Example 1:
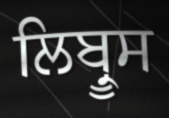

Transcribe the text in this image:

ਲਿਬ੍ਰੂਸ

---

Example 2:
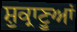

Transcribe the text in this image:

ਸ਼ੁਕ੍ਰਾਣੂਆਂ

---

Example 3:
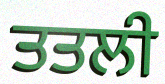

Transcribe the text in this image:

ਤਤਲੀ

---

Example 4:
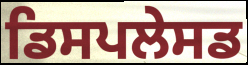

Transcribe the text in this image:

ਡਿਸਪਲੇਸਡ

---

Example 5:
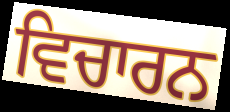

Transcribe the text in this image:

ਵਿਚਾਰਨ